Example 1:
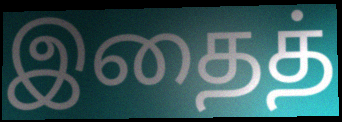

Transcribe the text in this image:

இதைத்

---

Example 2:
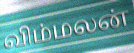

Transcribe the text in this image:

விம்மலன்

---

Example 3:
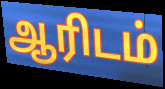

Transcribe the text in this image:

ஆரிடம்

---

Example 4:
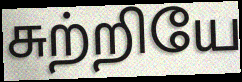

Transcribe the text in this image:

சுற்றியே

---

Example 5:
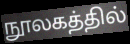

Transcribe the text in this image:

நூலகத்தில்